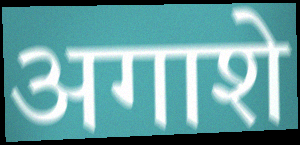
अगाशे